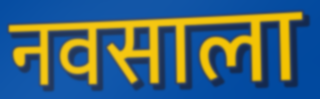
नवसाला